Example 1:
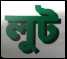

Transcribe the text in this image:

লুট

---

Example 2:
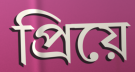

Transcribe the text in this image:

প্রিয়ে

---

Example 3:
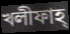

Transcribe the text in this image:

খলীফাহ্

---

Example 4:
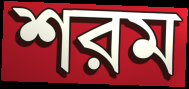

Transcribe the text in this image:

শরম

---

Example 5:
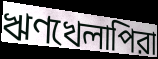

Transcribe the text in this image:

ঋণখেলাপিরা